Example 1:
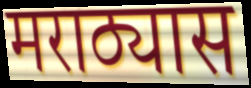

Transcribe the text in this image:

मराठ्यास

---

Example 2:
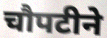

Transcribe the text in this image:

चौपटीने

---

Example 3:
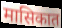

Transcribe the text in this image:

मासिकात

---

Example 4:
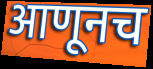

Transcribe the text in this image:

आणूनच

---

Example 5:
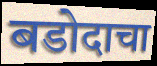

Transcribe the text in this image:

बडोदाचा